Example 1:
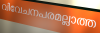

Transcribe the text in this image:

വിവേചനപരമല്ലാത്ത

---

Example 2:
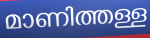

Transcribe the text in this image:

മാണിത്തള്ള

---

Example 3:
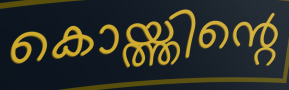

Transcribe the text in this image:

കൊയ്ത്തിന്റെ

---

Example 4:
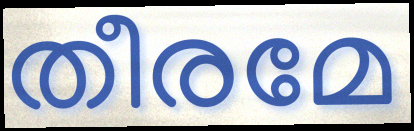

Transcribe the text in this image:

തീരമേ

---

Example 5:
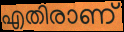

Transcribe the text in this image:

എതിരാണ്